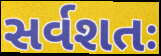
સર્વશતઃ